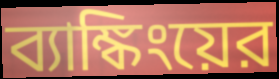
ব্যাঙ্কিংয়ের